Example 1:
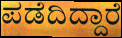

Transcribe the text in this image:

ಪಡೆದಿದ್ದಾರೆ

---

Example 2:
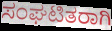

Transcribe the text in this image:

ಸಂಘಟಿತರಾಗಿ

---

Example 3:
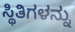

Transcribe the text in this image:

ಸ್ಥಿತಿಗಳನ್ನು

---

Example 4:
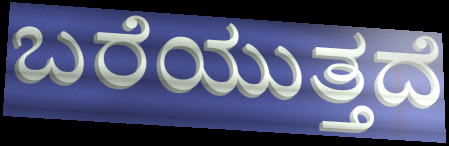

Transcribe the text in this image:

ಬರೆಯುತ್ತದೆ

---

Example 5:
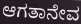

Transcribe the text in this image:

ಆಗತಾನೇವ